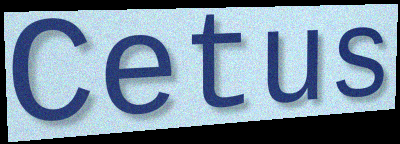
Cetus